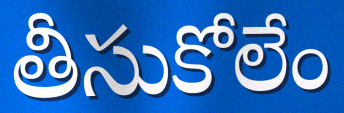
తీసుకోలేం